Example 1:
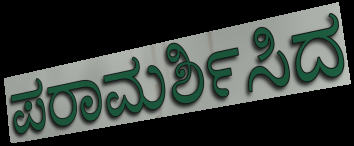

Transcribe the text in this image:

ಪರಾಮರ್ಶಿಸಿದ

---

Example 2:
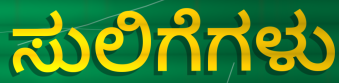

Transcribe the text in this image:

ಸುಲಿಗೆಗಳು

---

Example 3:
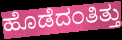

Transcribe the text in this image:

ಹೊಡೆದಂತಿತ್ತು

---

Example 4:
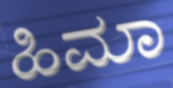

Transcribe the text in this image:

ಹಿಮಾ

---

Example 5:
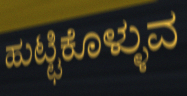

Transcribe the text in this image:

ಹುಟ್ಟಿಕೊಳ್ಳುವ